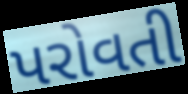
પરોવતી